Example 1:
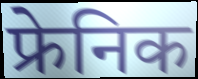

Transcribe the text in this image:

फ्रेनिक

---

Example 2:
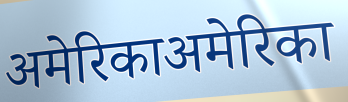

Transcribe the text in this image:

अमेरिकाअमेरिका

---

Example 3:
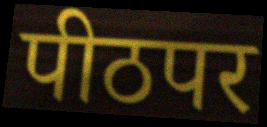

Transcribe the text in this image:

पीठपर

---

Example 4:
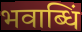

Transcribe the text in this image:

भवाब्धिं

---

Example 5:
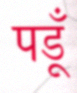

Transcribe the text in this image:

पडूँ